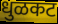
धुळकट